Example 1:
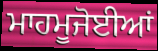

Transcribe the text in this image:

ਮਾਹਮੂਜੋਈਆਂ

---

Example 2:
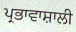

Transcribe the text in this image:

ਪ੍ਰਭਾਵਾਸ਼ਾਲੀ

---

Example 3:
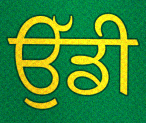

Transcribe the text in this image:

ਉੱਡੀ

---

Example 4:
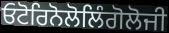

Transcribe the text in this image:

ਓਟੋਰਿਨੋਲੋਲਿੰਗੋਲੋਜੀ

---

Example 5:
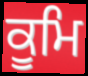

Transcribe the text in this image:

ਕੂਮਿ